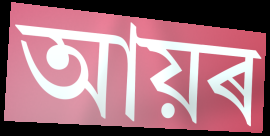
আয়ৰ